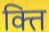
क्ति